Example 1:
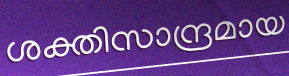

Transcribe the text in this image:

ശക്തിസാന്ദ്രമായ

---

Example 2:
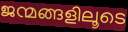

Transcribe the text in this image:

ജന്മങ്ങളിലൂടെ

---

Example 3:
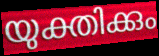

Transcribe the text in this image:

യുക്തിക്കും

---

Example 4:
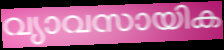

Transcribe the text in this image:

വ്യാവസായിക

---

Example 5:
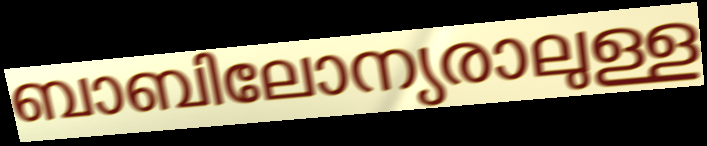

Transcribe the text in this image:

ബാബിലോന്യരാലുള്ള